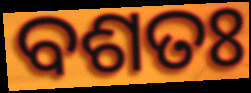
ବଶତଃ